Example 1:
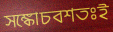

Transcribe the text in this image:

সঙ্কোচবশতঃই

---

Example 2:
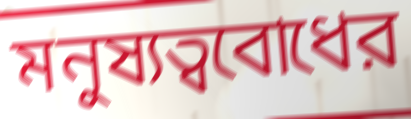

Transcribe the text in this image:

মনুষ্যত্ববোধের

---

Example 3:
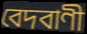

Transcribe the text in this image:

বেদবাণী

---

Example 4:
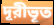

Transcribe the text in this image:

দূরীভূত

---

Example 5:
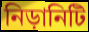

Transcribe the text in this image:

নিড়ানিটি